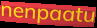
nenpaatu